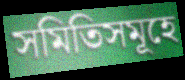
সমিতিসমূহে